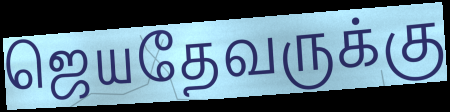
ஜெயதேவருக்கு